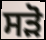
ਸੜੋ